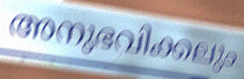
അനുഭവിക്കലും